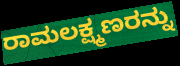
ರಾಮಲಕ್ಷ್ಮಣರನ್ನು